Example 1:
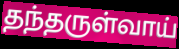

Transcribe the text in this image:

தந்தருள்வாய்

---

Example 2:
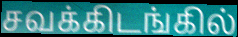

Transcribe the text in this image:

சவக்கிடங்கில்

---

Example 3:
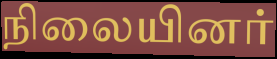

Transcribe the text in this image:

நிலையினர்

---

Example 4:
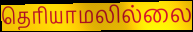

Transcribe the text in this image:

தெரியாமலில்லை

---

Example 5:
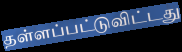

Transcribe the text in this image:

தள்ளப்பட்டுவிட்டது